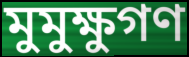
মুমুক্ষুগণ